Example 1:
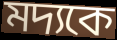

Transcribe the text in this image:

মদ্যকে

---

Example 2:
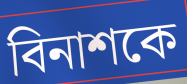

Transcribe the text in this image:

বিনাশকে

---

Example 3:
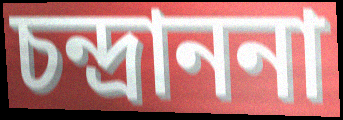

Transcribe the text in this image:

চন্দ্রাননা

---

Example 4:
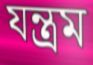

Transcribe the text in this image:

যন্ত্রম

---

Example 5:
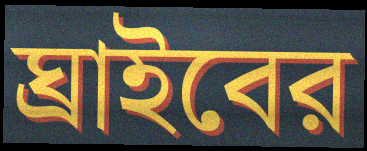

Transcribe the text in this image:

ঘ্রাইবের